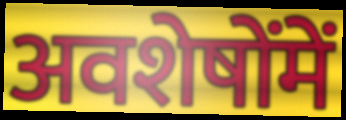
अवशेषोंमें